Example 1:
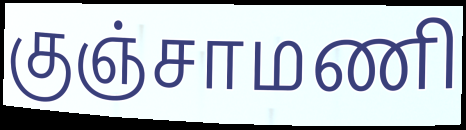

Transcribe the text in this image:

குஞ்சாமணி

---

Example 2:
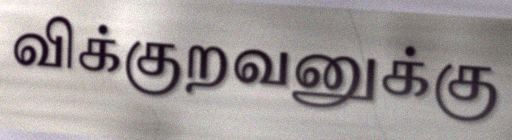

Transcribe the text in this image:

விக்குறவனுக்கு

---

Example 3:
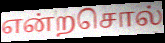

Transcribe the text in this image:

என்றசொல்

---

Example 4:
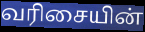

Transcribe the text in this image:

வரிசையின்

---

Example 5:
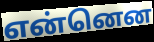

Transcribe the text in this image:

என்னென